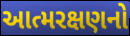
આત્મરક્ષણનો